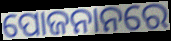
ପୋଜନାନରେ